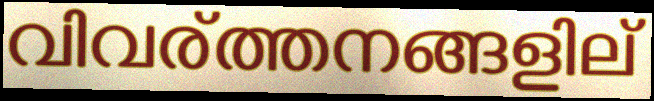
വിവര്ത്തനങ്ങളില്